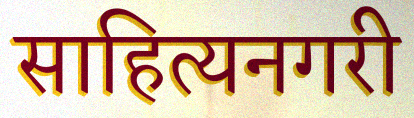
साहित्यनगरी